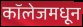
कॉलेजमधून